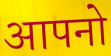
आपनो